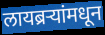
लायब्रऱ्यांमधून